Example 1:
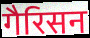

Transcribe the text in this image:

गैरिसन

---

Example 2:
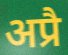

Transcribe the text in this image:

अप्रै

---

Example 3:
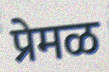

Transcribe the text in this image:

प्रेमळ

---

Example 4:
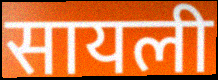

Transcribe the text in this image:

सायली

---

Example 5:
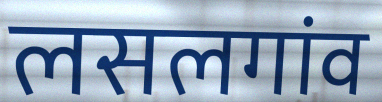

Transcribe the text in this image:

लसलगांव